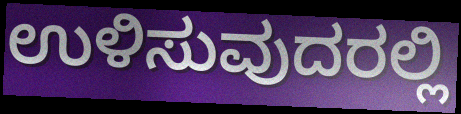
ಉಳಿಸುವುದರಲ್ಲಿ